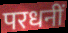
परधनीं